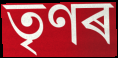
তৃণৰ